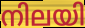
നിലയി